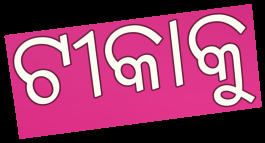
ଟୀକାକୁ